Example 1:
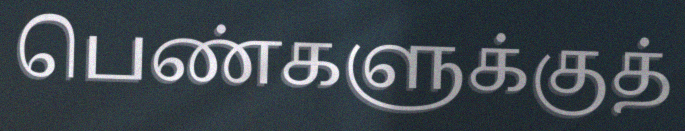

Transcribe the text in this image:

பெண்களுக்குத்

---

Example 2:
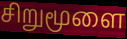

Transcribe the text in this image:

சிறுமூளை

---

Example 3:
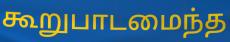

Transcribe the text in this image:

கூறுபாடமைந்த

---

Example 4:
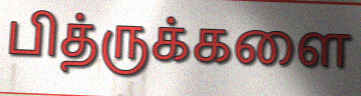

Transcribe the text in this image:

பித்ருக்களை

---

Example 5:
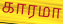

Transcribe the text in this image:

காரமா